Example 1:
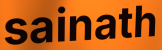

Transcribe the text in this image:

sainath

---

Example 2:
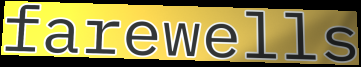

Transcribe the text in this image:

farewells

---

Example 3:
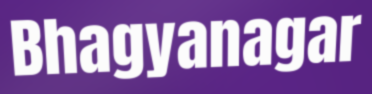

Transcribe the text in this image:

Bhagyanagar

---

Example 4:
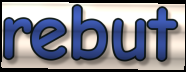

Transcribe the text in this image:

rebut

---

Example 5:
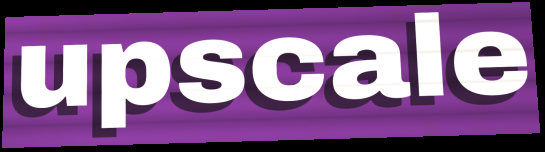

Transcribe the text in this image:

upscale